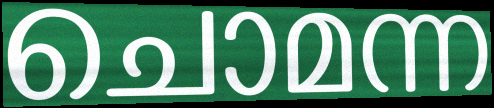
ചൊമന്ന